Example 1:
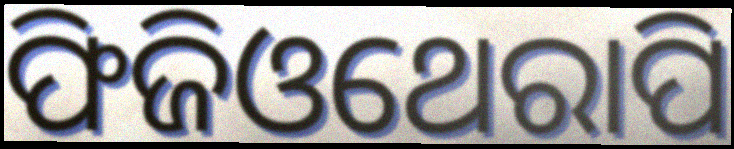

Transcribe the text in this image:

ଫିଜିଓଥେରାପି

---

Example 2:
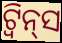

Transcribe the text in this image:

ଟ୍ବିନ୍‌ସ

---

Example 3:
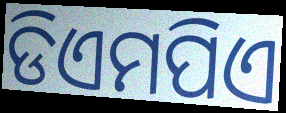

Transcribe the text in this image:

ଡିଏମପିଏ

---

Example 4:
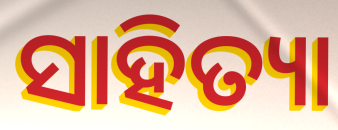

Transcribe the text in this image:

ସାହିତ୍ୟା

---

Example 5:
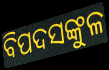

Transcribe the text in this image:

ବିପଦସଙ୍କୁଳ